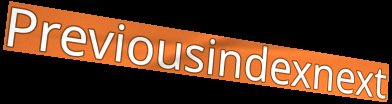
Previousindexnext